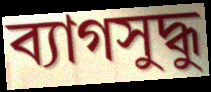
ব্যাগসুদ্ধু